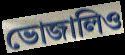
ভোজালিও